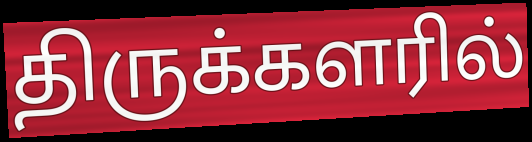
திருக்களரில்